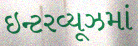
ઇન્ટરવ્યૂઝમાં